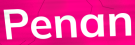
Penan